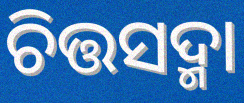
ଚିତ୍ତସଦ୍ମା